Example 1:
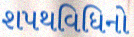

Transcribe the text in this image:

શપથવિધિનો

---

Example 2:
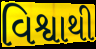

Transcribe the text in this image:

વિશ્વાથી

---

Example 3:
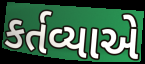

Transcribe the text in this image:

કર્તવ્યાએ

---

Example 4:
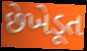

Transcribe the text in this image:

છેખેડૂત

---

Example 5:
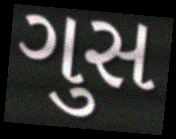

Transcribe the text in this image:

ગુસ